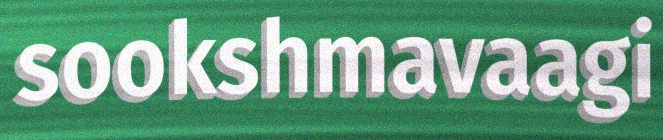
sookshmavaagi